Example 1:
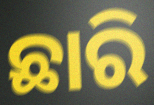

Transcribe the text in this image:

ଛାରି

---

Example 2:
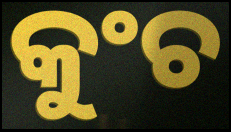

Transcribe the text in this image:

କୁଂଚ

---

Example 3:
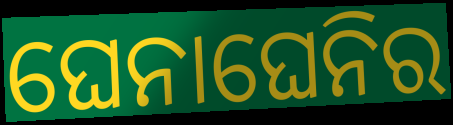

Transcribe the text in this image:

ଘେନାଘେନିର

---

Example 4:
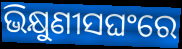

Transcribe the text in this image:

ଭିକ୍ଷୁଣୀସଘଂରେ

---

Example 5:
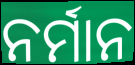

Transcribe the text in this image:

ନର୍ମାନ